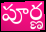
పూర్ణ